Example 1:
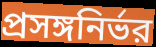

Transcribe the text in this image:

প্রসঙ্গনির্ভর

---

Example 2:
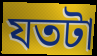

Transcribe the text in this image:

যতটা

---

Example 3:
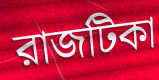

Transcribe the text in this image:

রাজটিকা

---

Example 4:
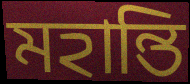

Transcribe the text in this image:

মহান্তি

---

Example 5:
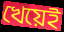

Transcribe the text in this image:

খেয়েই